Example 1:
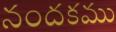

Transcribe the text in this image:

నందకము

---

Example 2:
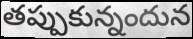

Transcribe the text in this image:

తప్పుకున్నందున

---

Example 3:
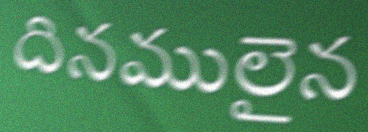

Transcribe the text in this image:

దినములైన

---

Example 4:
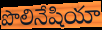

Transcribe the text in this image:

పొలినేషియా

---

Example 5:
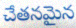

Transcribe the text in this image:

చేతనమైన